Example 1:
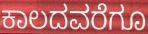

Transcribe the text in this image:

ಕಾಲದವರೆಗೂ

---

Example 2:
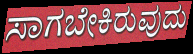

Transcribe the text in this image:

ಸಾಗಬೇಕಿರುವುದು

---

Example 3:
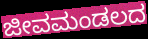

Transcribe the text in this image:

ಜೀವಮಂಡಲದ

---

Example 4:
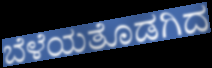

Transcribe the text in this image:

ಬೆಳೆಯತೊಡಗಿದ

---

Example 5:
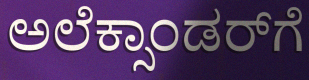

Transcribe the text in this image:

ಅಲೆಕ್ಸಾಂಡರ್‌ಗೆ